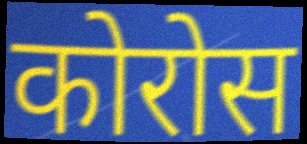
कोरोस